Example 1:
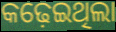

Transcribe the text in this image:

କଢ଼େଇଥିଲା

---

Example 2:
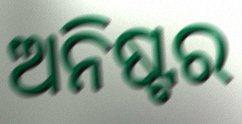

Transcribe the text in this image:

ଅନିଷ୍ଟର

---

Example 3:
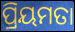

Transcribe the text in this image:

ପ୍ରିୟମତା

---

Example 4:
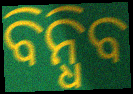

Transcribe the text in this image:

ବିନ୍ଧିବ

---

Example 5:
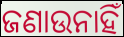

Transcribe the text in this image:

ଜଣାଉନାହିଁ